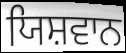
ਯਿਸ਼ਵਾਨ